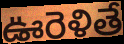
ఊరెళితే